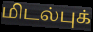
மிடல்புக்